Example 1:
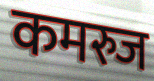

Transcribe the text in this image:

कमरुज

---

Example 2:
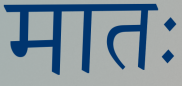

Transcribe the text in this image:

मातः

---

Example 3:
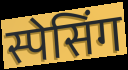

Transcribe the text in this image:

स्पेसिंग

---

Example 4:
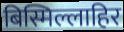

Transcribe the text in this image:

बिस्मिल्लाहिर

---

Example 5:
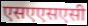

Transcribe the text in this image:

एसएएसएसी